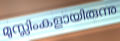
മുസ്ലിംകളായിരുന്നു